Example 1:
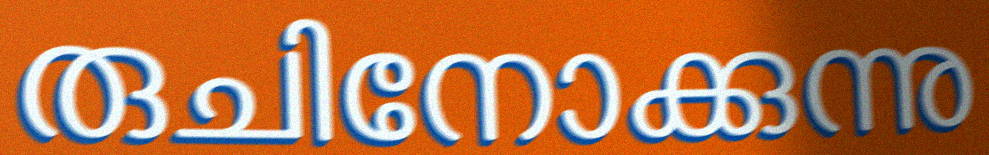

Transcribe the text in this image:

രുചിനോക്കുന്നു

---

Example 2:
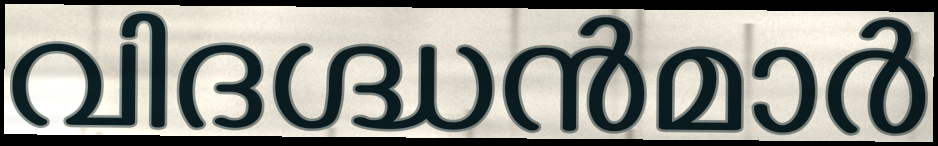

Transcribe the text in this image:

വിദഗ്ദ്ധൻമാർ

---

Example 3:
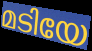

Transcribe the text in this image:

മടിയേ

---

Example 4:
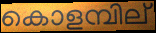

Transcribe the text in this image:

കൊളമ്പില്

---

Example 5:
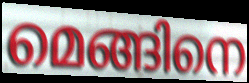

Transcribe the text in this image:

മെങ്ങിനെ